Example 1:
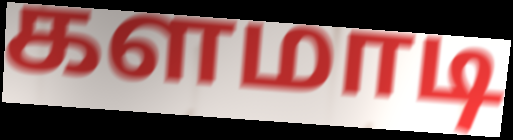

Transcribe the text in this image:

களமாடி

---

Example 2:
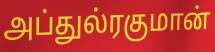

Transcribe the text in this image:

அப்துல்ரகுமான்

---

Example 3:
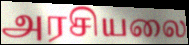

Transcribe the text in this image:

அரசியலை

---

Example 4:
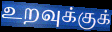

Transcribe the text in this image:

உறவுக்குக்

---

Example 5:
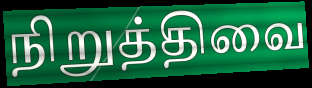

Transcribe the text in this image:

நிறுத்திவை